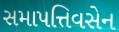
સમાપત્તિવસેન